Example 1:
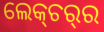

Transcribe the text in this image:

ଲେକ୍‌ଚର୍‌ର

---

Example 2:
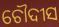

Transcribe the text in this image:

ଚୌଦୀସ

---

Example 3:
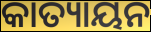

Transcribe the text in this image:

କାତ୍ୟାୟନ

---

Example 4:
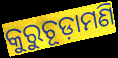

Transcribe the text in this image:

କୁରୁଚୂଡ଼ାମଣି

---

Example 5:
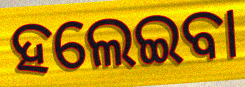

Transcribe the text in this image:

ହଲେଇବା